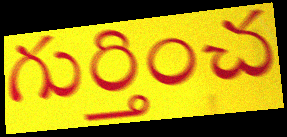
గుర్తించ